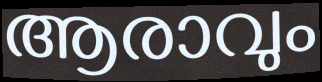
ആരാവും